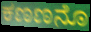
ಕಣಣನೊ